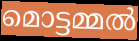
മൊട്ടമ്മൽ